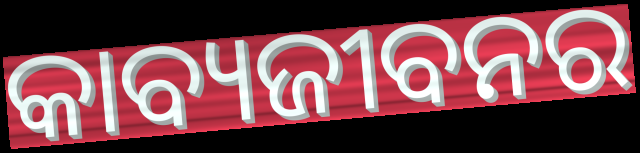
କାବ୍ୟଜୀବନର